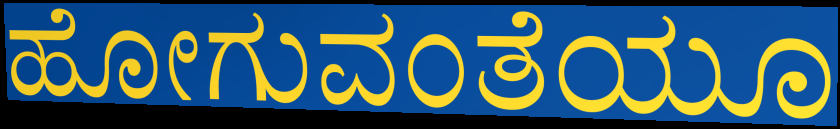
ಹೋಗುವಂತೆಯೂ